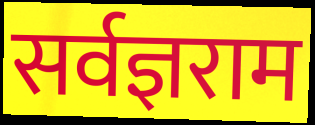
सर्वज्ञराम